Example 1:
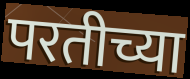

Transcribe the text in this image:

परतीच्या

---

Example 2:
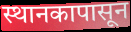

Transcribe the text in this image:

स्थानकापासून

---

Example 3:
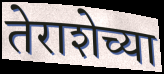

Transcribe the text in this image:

तेराशेच्या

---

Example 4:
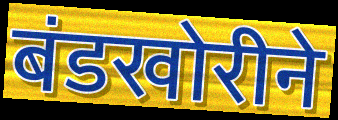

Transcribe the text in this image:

बंडखोरीने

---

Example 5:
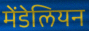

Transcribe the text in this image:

मेंडेलियन